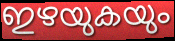
ഇഴയുകയും